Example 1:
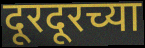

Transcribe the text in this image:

दूरदूरच्या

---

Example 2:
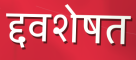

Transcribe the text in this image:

द्दवशेषत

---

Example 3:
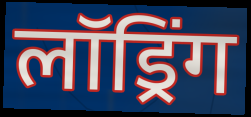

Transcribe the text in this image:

लॉड्रिंग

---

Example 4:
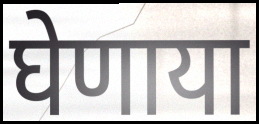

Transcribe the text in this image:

घेणाया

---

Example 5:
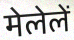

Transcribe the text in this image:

मेलेलें